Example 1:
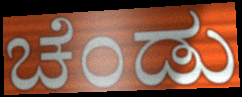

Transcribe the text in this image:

ಚೆಂಡು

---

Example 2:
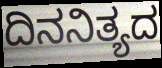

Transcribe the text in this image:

ದಿನನಿತ್ಯದ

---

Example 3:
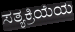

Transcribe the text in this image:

ಸತ್ಯಕ್ರಿಯೆಯ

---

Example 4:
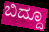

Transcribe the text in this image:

ಬಿದ್ದೂ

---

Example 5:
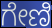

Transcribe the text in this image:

ಗೇಣಿ